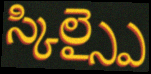
స్కిల్స్పై